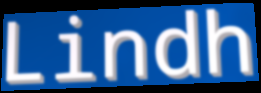
Lindh